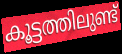
കൂട്ടത്തിലുണ്ട്